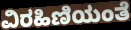
ವಿರಹಿಣಿಯಂತೆ